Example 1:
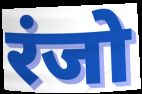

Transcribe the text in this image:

रंजो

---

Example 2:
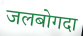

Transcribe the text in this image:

जलबोगदा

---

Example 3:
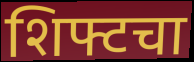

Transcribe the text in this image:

शिफ्टचा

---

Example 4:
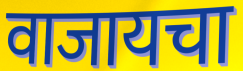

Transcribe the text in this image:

वाजायचा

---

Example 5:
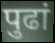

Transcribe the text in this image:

पुढां